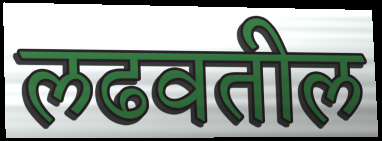
लढवतील